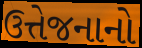
ઉત્તેજનાનો